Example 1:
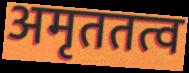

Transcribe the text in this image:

अमृततत्व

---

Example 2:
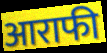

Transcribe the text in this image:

आराफी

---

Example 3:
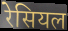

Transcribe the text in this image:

रेसियल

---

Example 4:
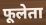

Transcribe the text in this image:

फूलेता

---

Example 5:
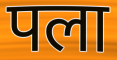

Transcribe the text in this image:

पला